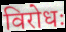
विरोधः